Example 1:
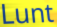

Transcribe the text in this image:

Lunt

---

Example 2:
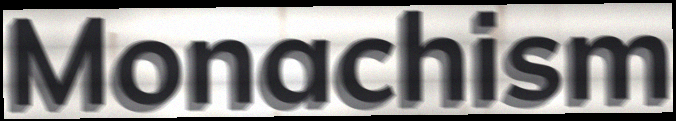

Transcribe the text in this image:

Monachism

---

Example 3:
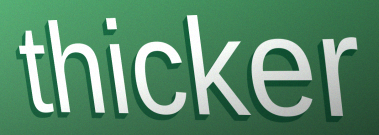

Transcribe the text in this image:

thicker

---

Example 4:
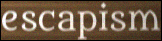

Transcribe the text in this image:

escapism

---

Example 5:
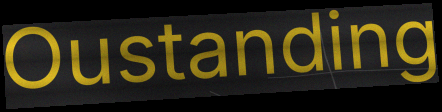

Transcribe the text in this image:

Oustanding